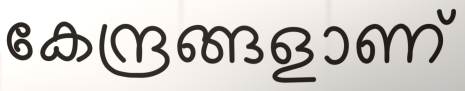
കേന്ദ്രങ്ങളാണ്